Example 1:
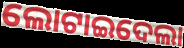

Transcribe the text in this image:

ଲୋଟାଇଦେଲା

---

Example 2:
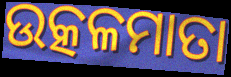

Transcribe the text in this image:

ଉତ୍କଳମାତା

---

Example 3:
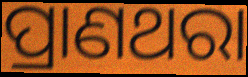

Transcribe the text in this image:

ପ୍ରାଣଥରା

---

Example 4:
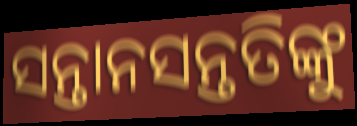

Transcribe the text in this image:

ସନ୍ତାନସନ୍ତତିଙ୍କୁ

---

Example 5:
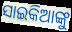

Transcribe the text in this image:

ସାଇକିଆଙ୍କୁ